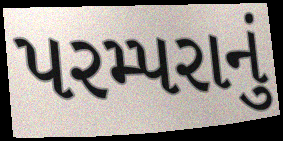
પરમ્પરાનું